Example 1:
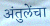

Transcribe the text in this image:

अंतुलेंचा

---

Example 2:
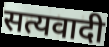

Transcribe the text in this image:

सत्यवादी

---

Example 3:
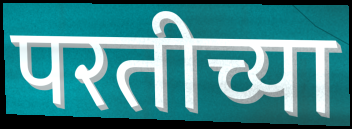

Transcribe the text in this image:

परतीच्या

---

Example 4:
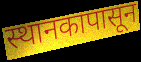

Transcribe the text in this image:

स्थानकापासून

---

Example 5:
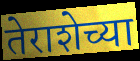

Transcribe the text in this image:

तेराशेच्या